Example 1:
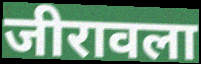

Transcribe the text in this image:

जीरावला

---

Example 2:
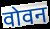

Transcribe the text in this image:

वोवन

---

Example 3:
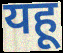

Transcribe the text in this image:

यहू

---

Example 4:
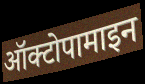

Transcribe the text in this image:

ऑक्टोपामाइन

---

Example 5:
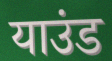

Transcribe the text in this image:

याउंड